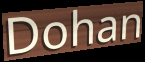
Dohan